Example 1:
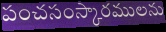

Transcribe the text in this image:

పంచసంస్కారములను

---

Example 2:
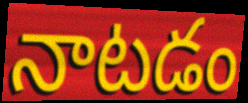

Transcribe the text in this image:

నాటడం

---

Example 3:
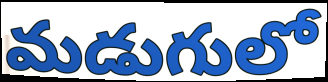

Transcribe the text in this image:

మడుగులో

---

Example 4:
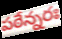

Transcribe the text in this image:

పఠేన్నరః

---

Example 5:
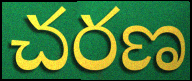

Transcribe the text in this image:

చరణ